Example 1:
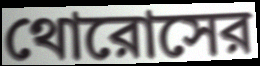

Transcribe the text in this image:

থোরোসের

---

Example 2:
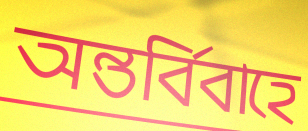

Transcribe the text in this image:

অন্তর্বিবাহে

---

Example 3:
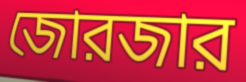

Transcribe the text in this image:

জোরজার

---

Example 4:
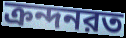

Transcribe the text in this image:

ক্রন্দনরত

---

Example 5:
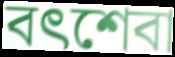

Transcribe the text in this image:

বৎশেবা